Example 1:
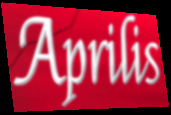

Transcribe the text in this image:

Aprilis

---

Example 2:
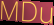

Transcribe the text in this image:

MDu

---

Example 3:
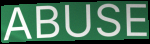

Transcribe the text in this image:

ABUSE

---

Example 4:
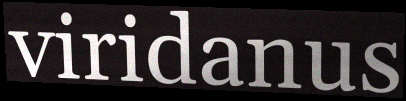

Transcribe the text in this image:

viridanus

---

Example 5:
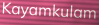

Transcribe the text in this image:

Kayamkulam